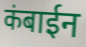
कंबाईन